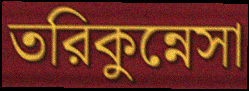
তরিকুন্নেসা